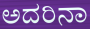
ಅದರಿನಾ